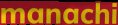
manachi